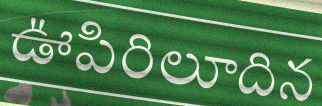
ఊపిరిలూదిన